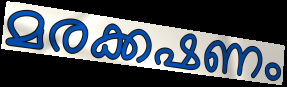
മരക്കഷണം